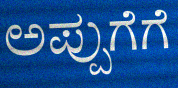
ಅಪ್ಪುಗೆಗೆ